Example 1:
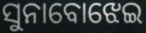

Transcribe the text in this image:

ସୁନାବୋଝେଇ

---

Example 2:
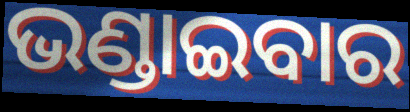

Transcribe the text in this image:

ଭଣ୍ଡାଇବାର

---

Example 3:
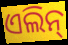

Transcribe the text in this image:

ଏଲିନ୍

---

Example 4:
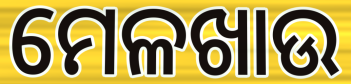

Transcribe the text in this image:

ମେଳଖାଉ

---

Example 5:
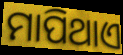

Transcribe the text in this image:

ମାପିଥାଏ